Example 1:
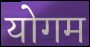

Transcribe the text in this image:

योगम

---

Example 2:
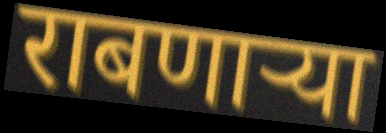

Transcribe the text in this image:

राबणार्‍या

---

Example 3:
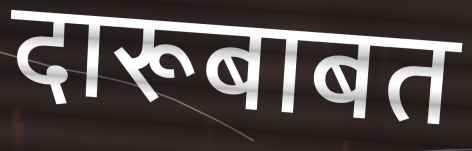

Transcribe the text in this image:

दारूबाबत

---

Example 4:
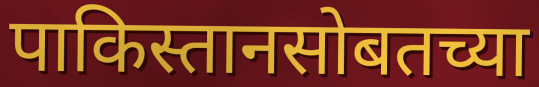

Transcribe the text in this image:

पाकिस्तानसोबतच्या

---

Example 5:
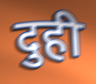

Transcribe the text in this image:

दुही